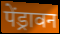
पेंड्रावन